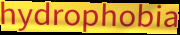
hydrophobia